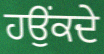
ਹਉਂਕਦੇ